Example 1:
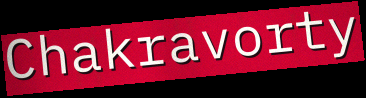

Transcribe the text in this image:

Chakravorty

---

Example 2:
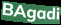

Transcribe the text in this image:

BAgadi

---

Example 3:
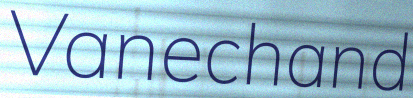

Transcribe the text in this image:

Vanechand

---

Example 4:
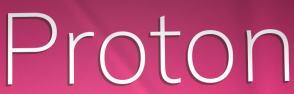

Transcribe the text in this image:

Proton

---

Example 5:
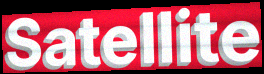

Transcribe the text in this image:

Satellite